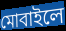
মোবাইলে